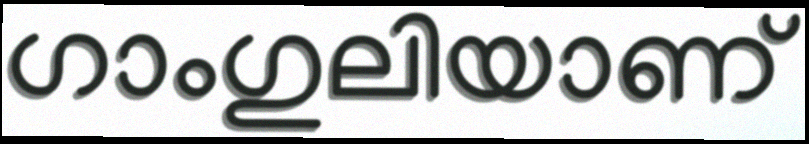
ഗാംഗുലിയാണ്